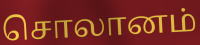
சொலானம்